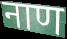
नाण